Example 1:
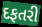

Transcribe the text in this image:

દફતરી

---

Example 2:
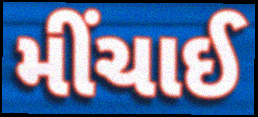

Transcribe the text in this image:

મીંચાઈ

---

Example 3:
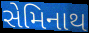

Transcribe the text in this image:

સેમિનાથ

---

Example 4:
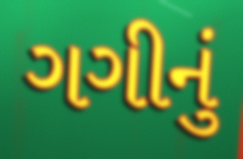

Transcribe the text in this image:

ગગીનું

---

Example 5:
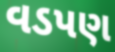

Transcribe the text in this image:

વડપણ